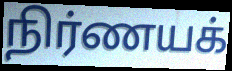
நிர்ணயக்